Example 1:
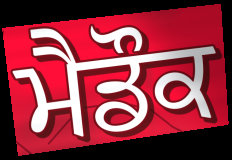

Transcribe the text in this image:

ਮੈਡੌਕ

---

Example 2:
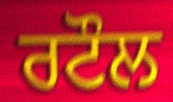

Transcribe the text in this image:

ਰਟੌਲ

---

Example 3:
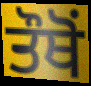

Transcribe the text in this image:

ਤੌਥੋਂ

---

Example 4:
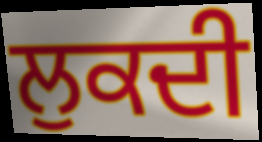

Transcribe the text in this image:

ਲੁਕਦੀ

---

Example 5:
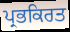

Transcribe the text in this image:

ਪ੍ਰਭਕਿਰਤ